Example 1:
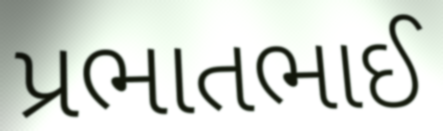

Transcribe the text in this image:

પ્રભાતભાઈ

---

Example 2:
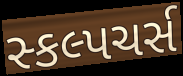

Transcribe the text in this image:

સ્કલ્પચર્સ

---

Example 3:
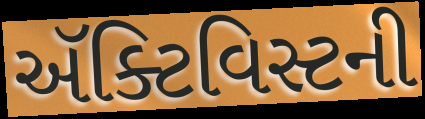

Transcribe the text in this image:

ઍક્ટિવિસ્ટની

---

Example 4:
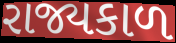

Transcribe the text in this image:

રાજ્યકાળ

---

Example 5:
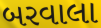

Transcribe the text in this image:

બરવાલા